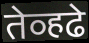
तेव्हढे